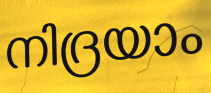
നിദ്രയാം